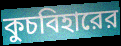
কুচবিহারের